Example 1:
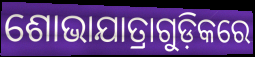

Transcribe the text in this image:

ଶୋଭାଯାତ୍ରାଗୁଡ଼ିକରେ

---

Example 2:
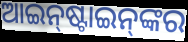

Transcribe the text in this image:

ଆଇନ୍‌ଷ୍ଟାଇନ୍‌ଙ୍କର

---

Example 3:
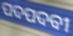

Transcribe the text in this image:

ପଦପଦବୀ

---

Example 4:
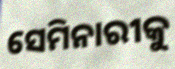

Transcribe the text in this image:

ସେମିନାରୀକୁ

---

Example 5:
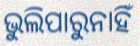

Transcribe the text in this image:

ଭୁଲିପାରୁନାହିଁ